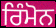
ਰਿੰਮੋਨ